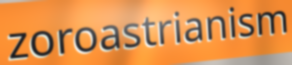
zoroastrianism